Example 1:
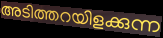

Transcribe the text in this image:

അടിത്തറയിളക്കുന്ന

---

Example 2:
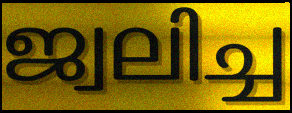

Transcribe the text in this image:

ജ്വലിച്ച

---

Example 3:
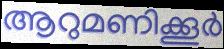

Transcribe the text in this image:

ആറുമണിക്കൂർ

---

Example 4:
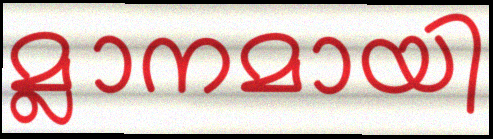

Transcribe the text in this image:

മ്ലാനമായി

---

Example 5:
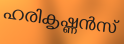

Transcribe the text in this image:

ഹരികൃഷ്ണൻസ്